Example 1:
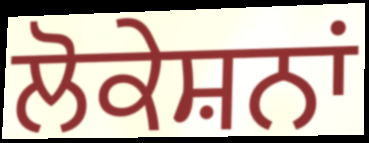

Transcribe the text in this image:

ਲੋਕੇਸ਼ਨਾਂ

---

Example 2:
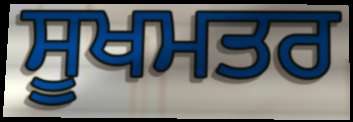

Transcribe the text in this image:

ਸੂਖਮਤਰ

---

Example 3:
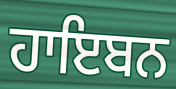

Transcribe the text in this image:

ਹਾਇਬਨ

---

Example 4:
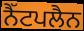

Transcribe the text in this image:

ਨੈੱਟਪਲੈਨ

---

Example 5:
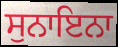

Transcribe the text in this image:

ਸੁਨਾਇਨਾ